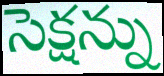
సెక్షన్ను